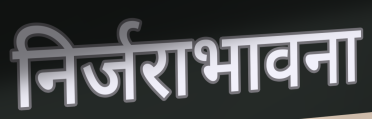
निर्जराभावना